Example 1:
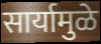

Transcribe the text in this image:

सार्यामुळे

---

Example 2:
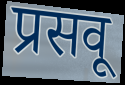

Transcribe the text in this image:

प्रसवू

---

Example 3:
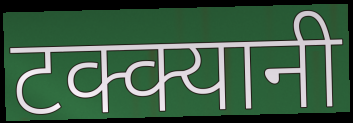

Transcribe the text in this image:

टक्क्यानी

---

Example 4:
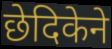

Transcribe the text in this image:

छेदिकेने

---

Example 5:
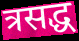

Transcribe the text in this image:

त्रसद्ध